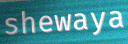
shewaya